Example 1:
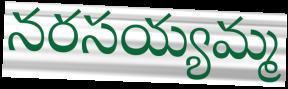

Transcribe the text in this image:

నరసయ్యమ్మ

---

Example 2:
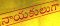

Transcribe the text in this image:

నాయకులుగా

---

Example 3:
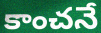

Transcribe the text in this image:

కాంచనే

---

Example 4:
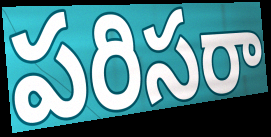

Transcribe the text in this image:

పరిసరా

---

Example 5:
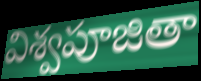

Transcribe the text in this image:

విశ్వపూజితా